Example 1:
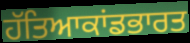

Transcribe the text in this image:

ਹੱਤਿਆਕਾਂਡਭਾਰਤ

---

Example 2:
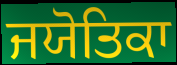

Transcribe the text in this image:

ਜਯੋਤਿਕਾ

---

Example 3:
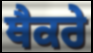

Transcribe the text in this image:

ਥੈਕਰੇ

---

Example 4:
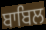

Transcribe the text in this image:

ਬਾਬਿਲ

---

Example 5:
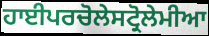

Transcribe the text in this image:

ਹਾਈਪਰਚੋਲੇਸਟ੍ਰੋਲੇਮੀਆ